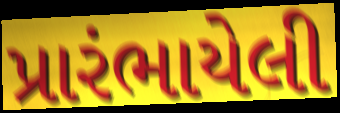
પ્રારંભાયેલી